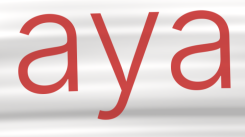
aya